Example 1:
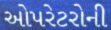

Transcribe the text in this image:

ઓપરેટરોની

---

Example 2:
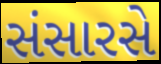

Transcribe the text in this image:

સંસારસે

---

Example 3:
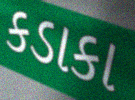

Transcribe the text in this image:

કડાકા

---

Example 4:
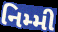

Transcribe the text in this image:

નિમ્મી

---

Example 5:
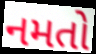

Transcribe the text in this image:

નમતો